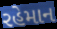
રહેમાન